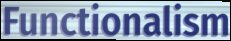
Functionalism